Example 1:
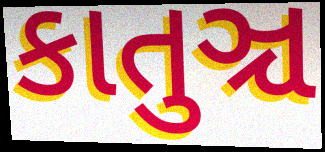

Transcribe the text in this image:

કાતુઞ્ચ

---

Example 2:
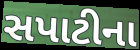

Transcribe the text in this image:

સપાટીના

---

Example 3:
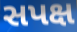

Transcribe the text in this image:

સપક્ષ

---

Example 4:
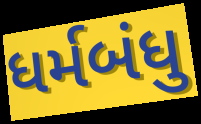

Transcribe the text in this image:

ધર્મબંધુ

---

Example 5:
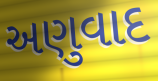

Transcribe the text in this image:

અણુવાદ